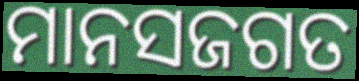
ମାନସଜଗତ